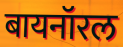
बायनॉरल